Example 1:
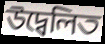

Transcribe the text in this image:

উদ্বেলিত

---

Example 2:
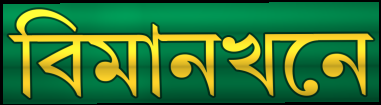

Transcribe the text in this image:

বিমানখনে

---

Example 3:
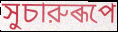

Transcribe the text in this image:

সুচাৰুৰূপে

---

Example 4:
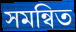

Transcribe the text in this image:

সমন্বিত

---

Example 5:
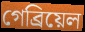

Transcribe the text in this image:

গেব্ৰিয়েল